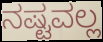
ನಷ್ಟವಲ್ಲ